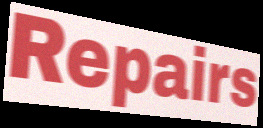
Repairs